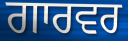
ਗਾਰਵਰ